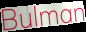
Bulman